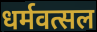
धर्मवत्सल